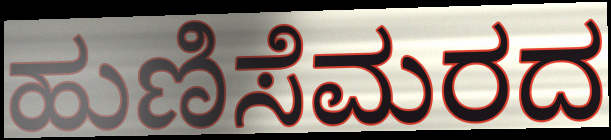
ಹುಣಿಸೆಮರದ